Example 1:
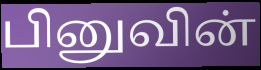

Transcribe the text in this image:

பினுவின்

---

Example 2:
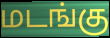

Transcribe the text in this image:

மடங்கு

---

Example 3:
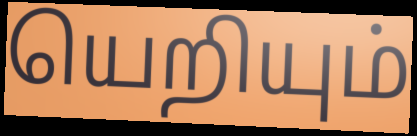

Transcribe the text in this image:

யெறியும்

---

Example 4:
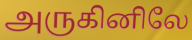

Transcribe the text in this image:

அருகினிலே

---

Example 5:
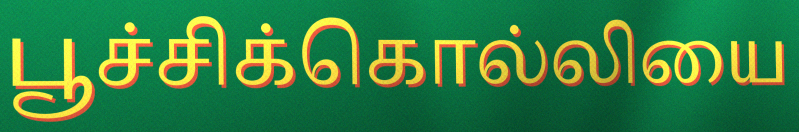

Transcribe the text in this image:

பூச்சிக்கொல்லியை